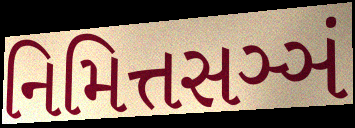
નિમિત્તસઞ્ઞં